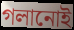
গলানোই